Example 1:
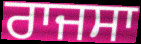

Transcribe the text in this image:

ਰਾਜਸਾ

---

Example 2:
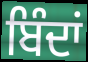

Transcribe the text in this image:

ਬਿੰਦਾਂ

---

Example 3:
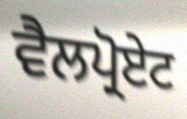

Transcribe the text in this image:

ਵੈਲਪ੍ਰੋਏਟ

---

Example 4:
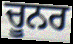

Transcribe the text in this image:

ਚੂਨਰ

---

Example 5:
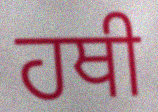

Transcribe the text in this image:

ਹਥੀ